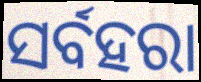
ସର୍ବହରା